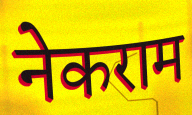
नेकराम